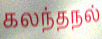
கலந்தநல்